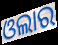
ଓଲାର